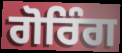
ਗੋਰਿੰਗ